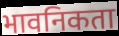
भावनिकता